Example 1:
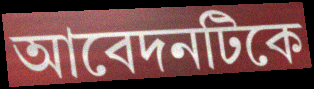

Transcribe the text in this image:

আবেদনটিকে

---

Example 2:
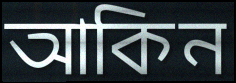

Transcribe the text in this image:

আকিন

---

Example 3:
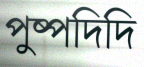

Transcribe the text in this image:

পুষ্পদিদি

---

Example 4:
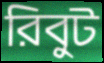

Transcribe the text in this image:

রিবুট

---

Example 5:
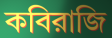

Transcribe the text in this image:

কবিরাজি